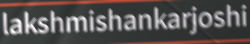
lakshmishankarjoshi